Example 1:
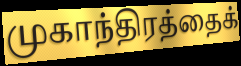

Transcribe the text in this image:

முகாந்திரத்தைக்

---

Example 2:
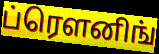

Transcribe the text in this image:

ப்ரௌனிங்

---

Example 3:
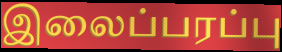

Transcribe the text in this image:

இலைப்பரப்பு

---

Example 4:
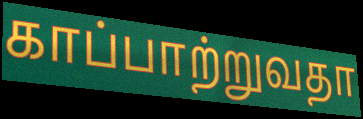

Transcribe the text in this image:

காப்பாற்றுவதா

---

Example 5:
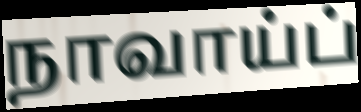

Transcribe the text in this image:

நாவாய்ப்